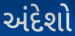
અંદેશો